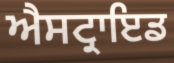
ਐਸਟ੍ਰਾਇਡ